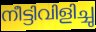
നീട്ടിവിളിച്ചു